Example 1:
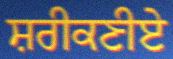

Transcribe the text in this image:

ਸ਼ਰੀਕਣੀਏ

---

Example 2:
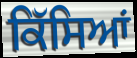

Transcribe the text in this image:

ਕਿੱਸਿਆਂ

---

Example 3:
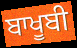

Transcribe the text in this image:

ਬਾਖੂਬੀ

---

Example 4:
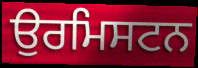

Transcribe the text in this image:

ਉਰਮਿਸਟਨ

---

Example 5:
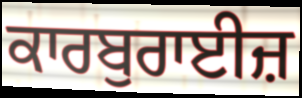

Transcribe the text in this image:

ਕਾਰਬੁਰਾਈਜ਼